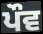
ਪੌਵ